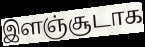
இளஞ்சூடாக